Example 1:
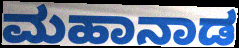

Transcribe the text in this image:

ಮಹಾನಾಡ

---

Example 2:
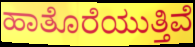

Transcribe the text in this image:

ಹಾತೊರೆಯುತ್ತಿವೆ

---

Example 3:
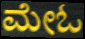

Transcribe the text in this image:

ಮೇಓ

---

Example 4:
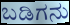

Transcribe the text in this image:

ಬಡಿಗನು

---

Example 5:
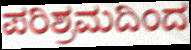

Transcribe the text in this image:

ಪರಿಶ್ರಮದಿಂದ